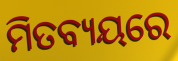
ମିତବ୍ୟୟରେ